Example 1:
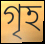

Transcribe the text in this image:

গৃহ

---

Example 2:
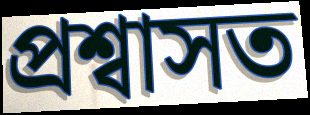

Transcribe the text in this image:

প্ৰশ্বাসত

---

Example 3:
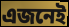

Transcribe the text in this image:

এজনেই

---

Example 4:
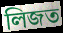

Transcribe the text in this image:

লিজত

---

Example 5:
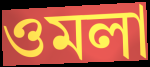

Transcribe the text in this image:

ওমলা